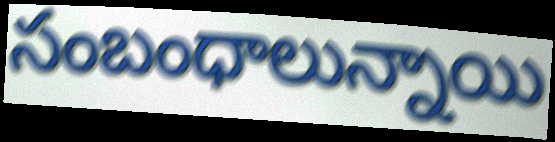
సంబంధాలున్నాయి